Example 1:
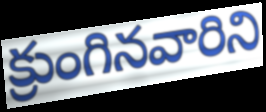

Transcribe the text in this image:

క్రుంగినవారిని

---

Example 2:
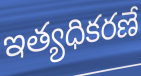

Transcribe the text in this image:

ఇత్యధికరణే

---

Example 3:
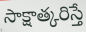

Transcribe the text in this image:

సాక్షాత్కరిస్తే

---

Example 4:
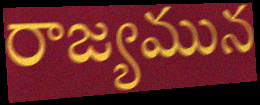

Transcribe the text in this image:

రాజ్యమున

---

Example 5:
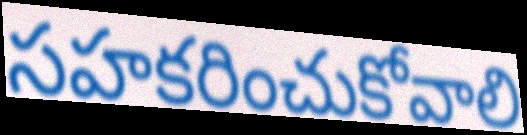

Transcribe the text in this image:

సహకరించుకోవాలి